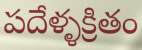
పదేళ్ళక్రితం